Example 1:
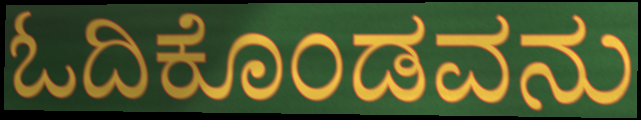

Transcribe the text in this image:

ಓದಿಕೊಂಡವನು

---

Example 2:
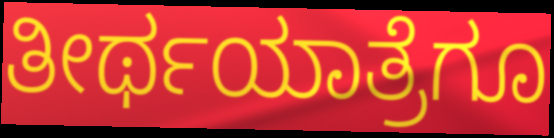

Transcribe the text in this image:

ತೀರ್ಥಯಾತ್ರೆಗೂ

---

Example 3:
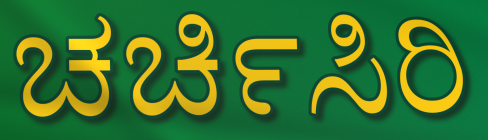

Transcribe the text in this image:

ಚರ್ಚಿಸಿರಿ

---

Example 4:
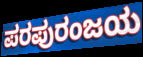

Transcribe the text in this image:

ಪರಪುರಂಜಯ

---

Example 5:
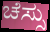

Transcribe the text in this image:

ಚೆಸ್ಸು